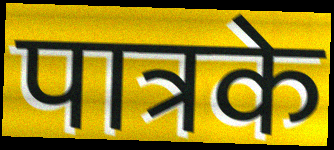
पात्रके